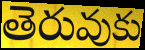
తెరువుకు